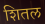
शितल